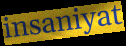
insaniyat